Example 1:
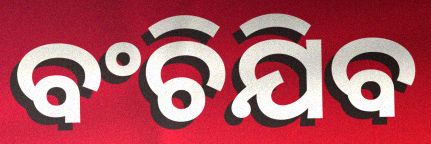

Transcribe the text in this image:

ବଂଚିଯିବ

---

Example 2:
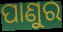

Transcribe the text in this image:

ପାଣୁର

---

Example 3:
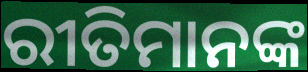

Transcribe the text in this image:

ରୀତିମାନଙ୍କ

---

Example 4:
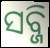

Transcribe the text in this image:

ସବ୍ଜି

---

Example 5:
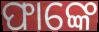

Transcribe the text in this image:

ଫାଙ୍କେ